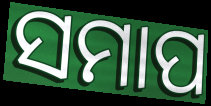
ସମାପ